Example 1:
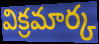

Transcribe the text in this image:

విక్రమార్క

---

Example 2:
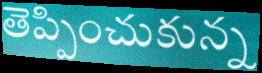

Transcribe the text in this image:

తెప్పించుకున్న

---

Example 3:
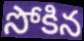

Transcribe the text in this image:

సోకిన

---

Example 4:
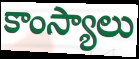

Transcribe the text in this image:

కాంస్యాలు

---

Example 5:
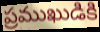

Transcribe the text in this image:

ప్రముఖుడికి